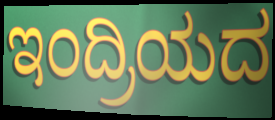
ಇಂದ್ರಿಯದ